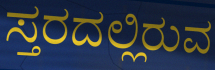
ಸ್ತರದಲ್ಲಿರುವ